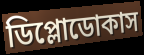
ডিপ্লোডোকাস